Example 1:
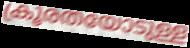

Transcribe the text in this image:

ക്രൂരതയോടുള്ള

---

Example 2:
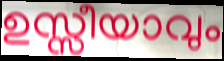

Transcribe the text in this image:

ഉസ്സീയാവും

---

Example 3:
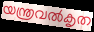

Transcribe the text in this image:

യന്ത്രവൽകൃത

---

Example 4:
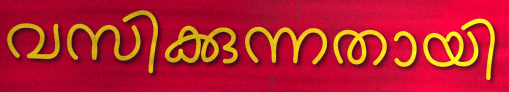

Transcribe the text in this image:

വസിക്കുന്നതായി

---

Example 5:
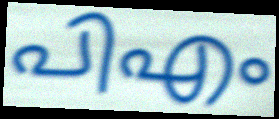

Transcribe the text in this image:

പിഎം